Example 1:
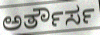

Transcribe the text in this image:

ಅರ್ತೌರ್ಸ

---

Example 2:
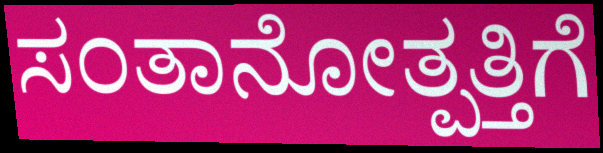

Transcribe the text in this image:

ಸಂತಾನೋತ್ಪತ್ತಿಗೆ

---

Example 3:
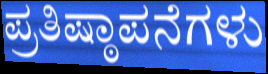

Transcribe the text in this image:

ಪ್ರತಿಷ್ಠಾಪನೆಗಳು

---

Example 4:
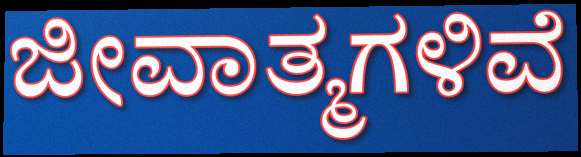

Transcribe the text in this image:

ಜೀವಾತ್ಮಗಳಿವೆ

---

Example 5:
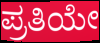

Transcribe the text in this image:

ಪ್ರತಿಯೇ